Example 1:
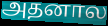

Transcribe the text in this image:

அதனால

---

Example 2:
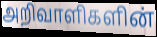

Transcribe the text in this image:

அறிவாளிகளின்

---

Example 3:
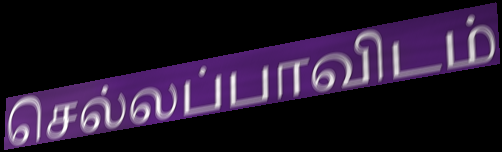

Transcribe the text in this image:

செல்லப்பாவிடம்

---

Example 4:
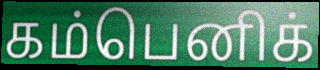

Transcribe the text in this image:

கம்பெனிக்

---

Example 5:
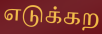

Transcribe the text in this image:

எடுக்கற